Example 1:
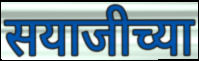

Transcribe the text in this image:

सयाजीच्या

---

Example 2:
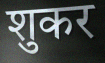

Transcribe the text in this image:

शुकर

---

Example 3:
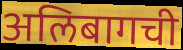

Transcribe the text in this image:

अलिबागची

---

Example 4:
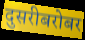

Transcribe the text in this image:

दुसरीबरोबर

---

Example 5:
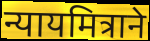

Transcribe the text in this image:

न्यायमित्राने